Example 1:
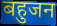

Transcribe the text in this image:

बहुजन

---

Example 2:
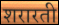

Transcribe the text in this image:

शरारती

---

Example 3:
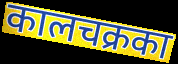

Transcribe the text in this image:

कालचक्रका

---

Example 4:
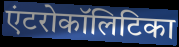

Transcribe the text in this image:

एंटरोकॉलिटिका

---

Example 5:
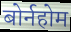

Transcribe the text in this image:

बोर्नहोम